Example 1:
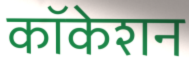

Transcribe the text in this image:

कॉकेशन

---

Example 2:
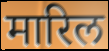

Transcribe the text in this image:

मारिल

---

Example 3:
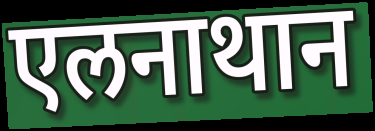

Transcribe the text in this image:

एलनाथान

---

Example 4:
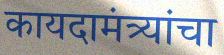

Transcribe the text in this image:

कायदामंत्र्यांचा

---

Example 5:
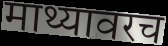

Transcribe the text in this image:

माथ्यावरच